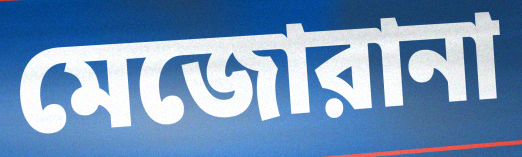
মেজোরানা